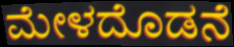
ಮೇಳದೊಡನೆ